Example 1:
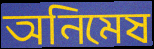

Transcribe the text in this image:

অনিমেষ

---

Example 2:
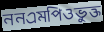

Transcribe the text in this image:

ননএমপিওভুক্ত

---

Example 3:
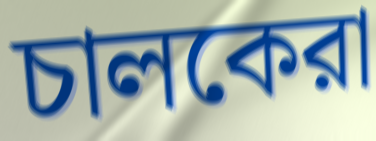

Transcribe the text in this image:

চালকেরা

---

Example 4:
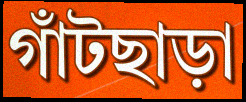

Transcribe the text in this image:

গাঁটছাড়া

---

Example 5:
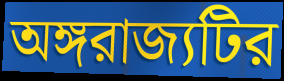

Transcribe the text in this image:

অঙ্গরাজ্যটির